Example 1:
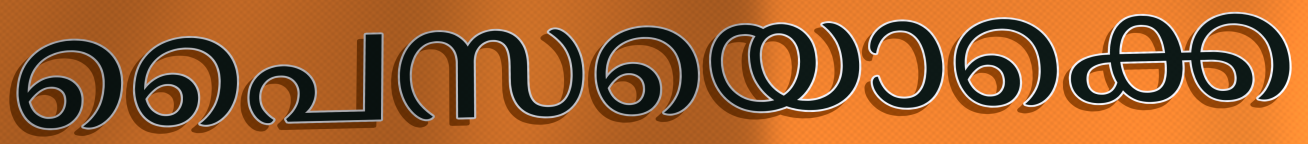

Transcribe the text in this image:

പൈസയൊക്കെ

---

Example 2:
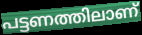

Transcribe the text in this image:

പട്ടണത്തിലാണ്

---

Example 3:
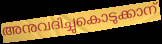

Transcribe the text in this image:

അനുവദിച്ചുകൊടുക്കാന്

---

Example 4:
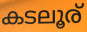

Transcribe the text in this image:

കടലൂര്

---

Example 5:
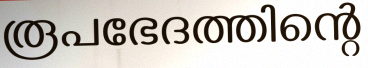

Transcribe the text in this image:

രൂപഭേദത്തിന്റെ